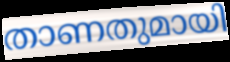
താണതുമായി